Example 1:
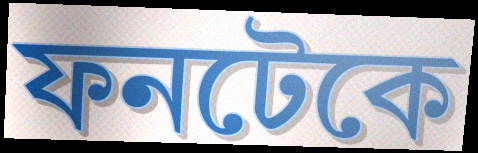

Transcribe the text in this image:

ফনটেকে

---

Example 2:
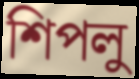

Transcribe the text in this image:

শিপলু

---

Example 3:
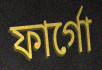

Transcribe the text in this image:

ফার্গো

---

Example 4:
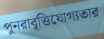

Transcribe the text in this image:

পুনরাবৃত্তিযোগ্যতার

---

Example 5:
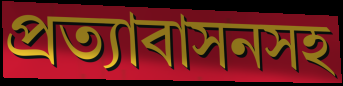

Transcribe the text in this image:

প্রত্যাবাসনসহ